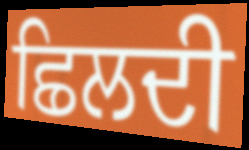
ਛਿਲਦੀ